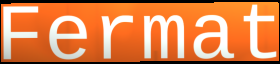
Fermat